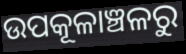
ଉପକୂଳାଞ୍ଚଳରୁ